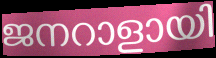
ജനറാളായി